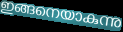
ഇങ്ങനെയാകുന്നു